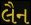
લૈન